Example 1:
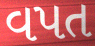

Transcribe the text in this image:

વપત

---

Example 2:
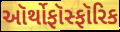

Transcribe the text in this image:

ઑર્થોફૉસ્ફૉરિક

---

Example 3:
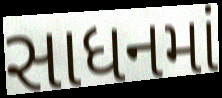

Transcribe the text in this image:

સાધનમાં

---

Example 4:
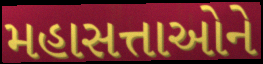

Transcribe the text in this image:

મહાસત્તાઓને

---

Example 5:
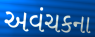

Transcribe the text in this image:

અવંચકના